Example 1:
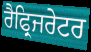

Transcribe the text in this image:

ਰੈਫ੍ਰਿਜਰੇਟਰ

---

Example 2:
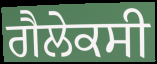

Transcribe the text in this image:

ਗੈਲੇਕਸੀ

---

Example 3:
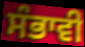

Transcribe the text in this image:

ਸੰਭਾਵੀ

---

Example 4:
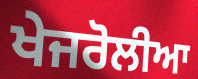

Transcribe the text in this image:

ਖੇਜਰੋਲੀਆ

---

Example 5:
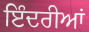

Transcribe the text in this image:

ਇੰਦਰੀਆਂ